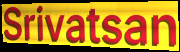
Srivatsan